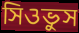
সিওভুস